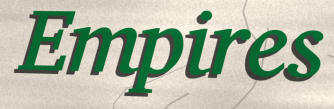
Empires